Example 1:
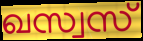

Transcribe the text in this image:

ഖസ്വസ്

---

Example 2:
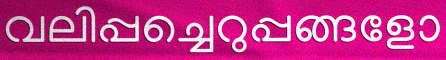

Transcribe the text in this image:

വലിപ്പച്ചെറുപ്പങ്ങളോ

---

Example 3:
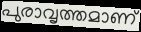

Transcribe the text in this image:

പുരാവൃത്തമാണ്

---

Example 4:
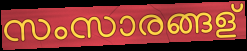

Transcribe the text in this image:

സംസാരങ്ങള്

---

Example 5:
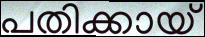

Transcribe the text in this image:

പതിക്കായ്